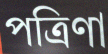
পত্রিণা